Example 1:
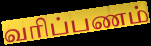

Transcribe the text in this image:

வரிப்பணம்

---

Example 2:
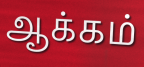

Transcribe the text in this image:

ஆக்கம்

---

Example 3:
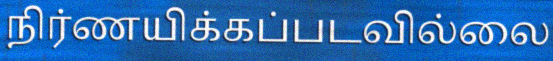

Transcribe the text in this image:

நிர்ணயிக்கப்படவில்லை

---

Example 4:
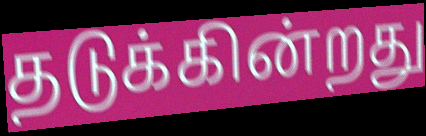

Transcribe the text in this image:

தடுக்கின்றது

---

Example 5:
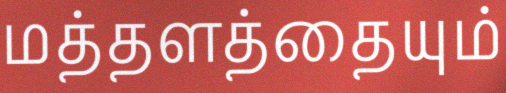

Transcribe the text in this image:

மத்தளத்தையும்